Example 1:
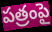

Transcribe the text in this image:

పత్రంపై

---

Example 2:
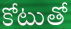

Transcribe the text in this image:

కోటుతో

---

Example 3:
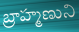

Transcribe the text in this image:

బ్రాహ్మణుని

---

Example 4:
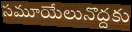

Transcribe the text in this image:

సమూయేలునొద్దకు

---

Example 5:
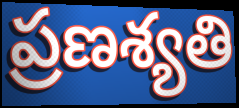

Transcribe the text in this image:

ప్రణశ్యతి